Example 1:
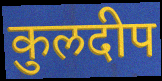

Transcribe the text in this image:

कुलदीप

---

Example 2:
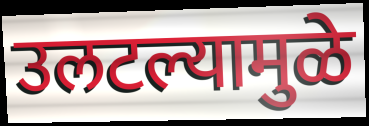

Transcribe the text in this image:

उलटल्यामुळे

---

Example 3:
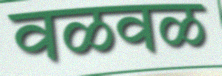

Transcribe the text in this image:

वळवळ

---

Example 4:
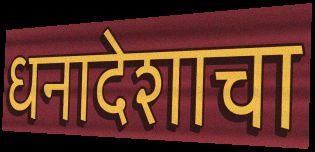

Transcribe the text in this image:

धनादेशाचा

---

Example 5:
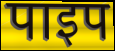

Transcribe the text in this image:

पाइप